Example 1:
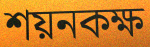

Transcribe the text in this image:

শয়নকক্ষ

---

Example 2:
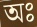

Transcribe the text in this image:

অঃ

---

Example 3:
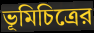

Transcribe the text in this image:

ভূমিচিত্রের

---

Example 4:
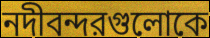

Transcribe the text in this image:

নদীবন্দরগুলোকে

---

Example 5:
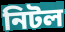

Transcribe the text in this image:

নিটল